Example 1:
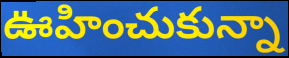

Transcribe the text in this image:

ఊహించుకున్నా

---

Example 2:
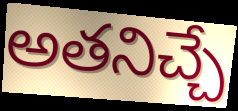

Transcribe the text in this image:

అతనిచ్చే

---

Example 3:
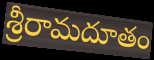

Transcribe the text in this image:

శ్రీరామదూతం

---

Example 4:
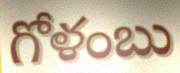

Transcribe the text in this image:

గోళంబు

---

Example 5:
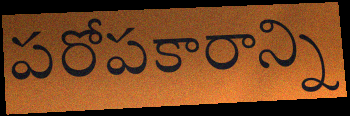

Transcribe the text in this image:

పరోపకారాన్ని